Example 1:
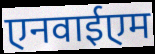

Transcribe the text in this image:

एनवाईएम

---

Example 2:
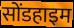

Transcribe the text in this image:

सोंडहाइम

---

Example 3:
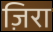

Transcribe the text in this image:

ज़िरा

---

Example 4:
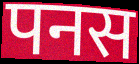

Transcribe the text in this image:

पनस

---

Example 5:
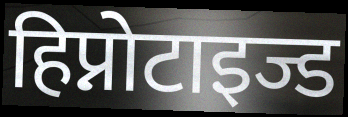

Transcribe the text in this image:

हिप्नोटाइज्ड